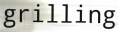
grilling